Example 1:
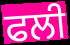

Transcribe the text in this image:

ਫਲੀ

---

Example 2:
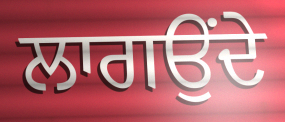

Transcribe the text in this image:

ਲਾਗਉਂਦੇ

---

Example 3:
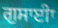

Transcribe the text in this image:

ਗੁਸਾਈਾ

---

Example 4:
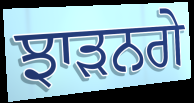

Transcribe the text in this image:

ਝਾੜਨਗੇ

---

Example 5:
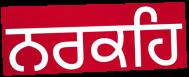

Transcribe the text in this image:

ਨਰਕਹਿ